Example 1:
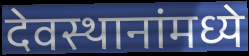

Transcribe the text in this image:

देवस्थानांमध्ये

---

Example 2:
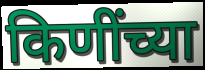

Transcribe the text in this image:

किणींच्या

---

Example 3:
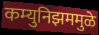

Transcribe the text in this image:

कम्युनिझममुळे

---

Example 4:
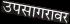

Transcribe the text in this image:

उपसागरावर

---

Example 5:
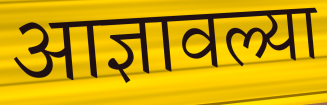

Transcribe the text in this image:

आज्ञावल्या